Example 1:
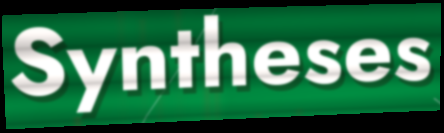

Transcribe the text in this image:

Syntheses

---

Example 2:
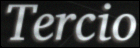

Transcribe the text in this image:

Tercio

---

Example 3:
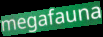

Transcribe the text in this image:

megafauna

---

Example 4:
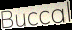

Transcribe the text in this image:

Buccal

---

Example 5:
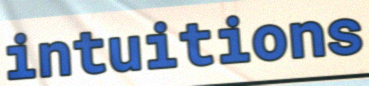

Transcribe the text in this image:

intuitions